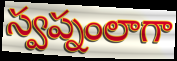
స్వప్నంలాగా